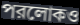
পরলোকও